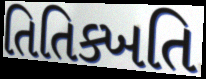
તિતિક્ખતિ